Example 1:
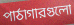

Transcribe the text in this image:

পাঠাগারগুলো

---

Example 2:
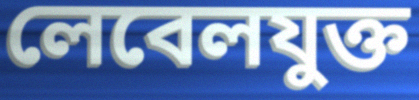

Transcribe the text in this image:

লেবেলযুক্ত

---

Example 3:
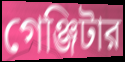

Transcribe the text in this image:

গেঞ্জিটার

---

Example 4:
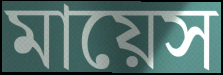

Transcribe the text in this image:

মায়েস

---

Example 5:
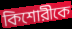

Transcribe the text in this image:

কিশোরীকে